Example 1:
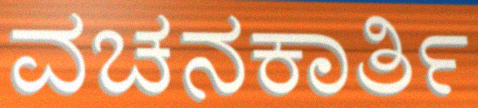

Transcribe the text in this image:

ವಚನಕಾರ್ತಿ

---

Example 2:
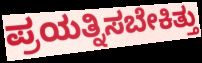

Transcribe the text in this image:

ಪ್ರಯತ್ನಿಸಬೇಕಿತ್ತು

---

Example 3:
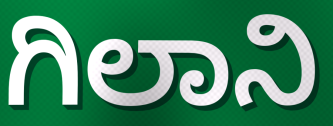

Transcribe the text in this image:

ಗಿಲಾನಿ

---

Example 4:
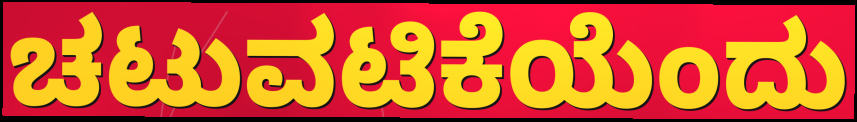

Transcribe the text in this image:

ಚಟುವಟಿಕೆಯೆಂದು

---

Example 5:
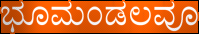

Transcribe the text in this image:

ಭೂಮಂಡಲವೂ